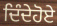
ਦਿੰਦੇਹੋਏ